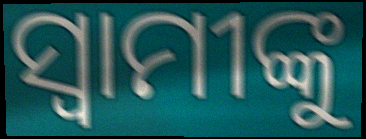
ସ୍ବାମୀଙ୍କୁ